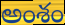
అంశం